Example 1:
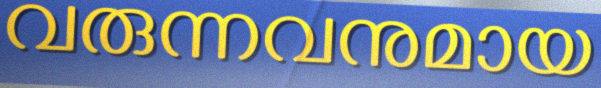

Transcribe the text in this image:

വരുന്നവനുമായ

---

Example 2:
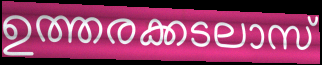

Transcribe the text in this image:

ഉത്തരക്കടലാസ്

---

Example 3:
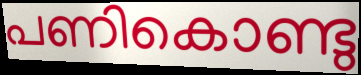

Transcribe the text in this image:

പണികൊണ്ടു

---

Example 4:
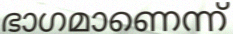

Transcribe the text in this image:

ഭാഗമാണെന്ന്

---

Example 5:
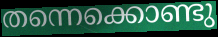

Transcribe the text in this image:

തന്നെക്കൊണ്ടു